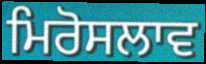
ਮਿਰੋਸਲਾਵ